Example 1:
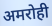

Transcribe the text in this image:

अमरोही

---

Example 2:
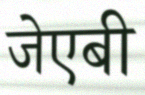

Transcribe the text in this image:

जेएबी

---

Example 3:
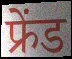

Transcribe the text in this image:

फ्रेंड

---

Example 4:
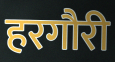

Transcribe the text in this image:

हरगौरी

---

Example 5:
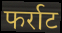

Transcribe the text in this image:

फर्राट